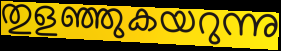
തുളഞ്ഞുകയറുന്നു